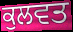
ਕੁਲਵਤ